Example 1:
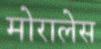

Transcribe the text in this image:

मोरालेस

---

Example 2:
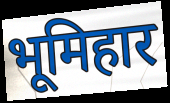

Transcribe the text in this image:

भूमिहार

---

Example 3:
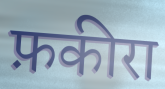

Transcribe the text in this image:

फ़कीरा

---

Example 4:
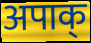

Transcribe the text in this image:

अपाक्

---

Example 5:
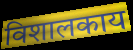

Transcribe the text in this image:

विशालकाय